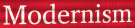
Modernism